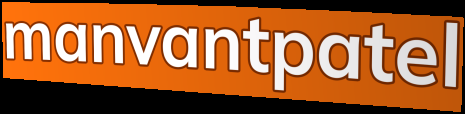
manvantpatel